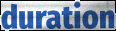
duration